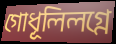
গোধূলিলগ্নে